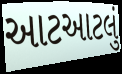
આટઆટલું